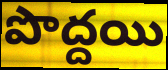
పొద్దయి